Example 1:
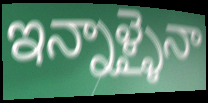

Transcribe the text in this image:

ఇన్నాళ్ళైనా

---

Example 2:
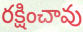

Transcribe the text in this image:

రక్షించావు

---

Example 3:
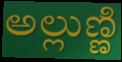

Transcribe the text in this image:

అల్లుణ్ణి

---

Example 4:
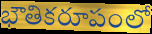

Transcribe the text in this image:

భౌతికరూపంలో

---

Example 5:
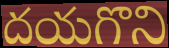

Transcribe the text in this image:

దయగొని